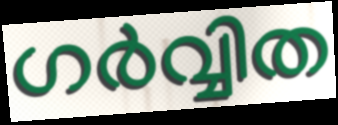
ഗർവ്വിത